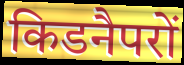
किडनैपरों